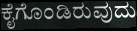
ಕೈಗೊಂಡಿರುವುದು